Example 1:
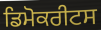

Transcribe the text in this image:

ਡਿਮੋਕਰੀਟਸ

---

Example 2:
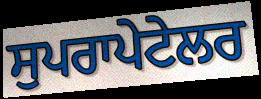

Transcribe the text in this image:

ਸੁਪਰਾਪੇਟੇਲਰ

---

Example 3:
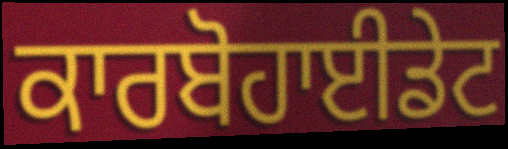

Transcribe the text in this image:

ਕਾਰਬੋਹਾਈਡੇਟ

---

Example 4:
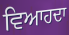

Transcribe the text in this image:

ਵਿਆਹਦਾ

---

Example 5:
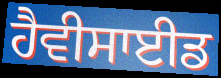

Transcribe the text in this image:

ਹੈਵੀਸਾਈਡ